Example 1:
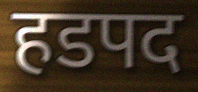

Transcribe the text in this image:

हडपद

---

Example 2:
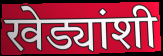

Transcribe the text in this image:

खेड्यांशी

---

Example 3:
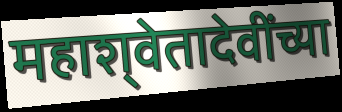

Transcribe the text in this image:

महाश्वेतादेवींच्या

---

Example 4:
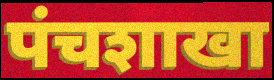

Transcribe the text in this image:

पंचशाखा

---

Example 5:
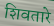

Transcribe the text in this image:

शिवतारे